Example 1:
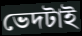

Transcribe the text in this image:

ভেদটাই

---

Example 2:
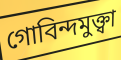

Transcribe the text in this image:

গোবিন্দমুক্ত্বা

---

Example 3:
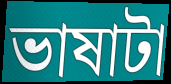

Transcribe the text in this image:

ভাষাটা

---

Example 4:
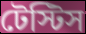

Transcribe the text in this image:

টেস্টিস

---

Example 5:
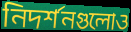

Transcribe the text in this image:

নিদর্শনগুলোও